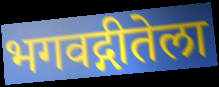
भगवद्गीतेला